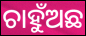
ଚାହୁଁଅଛ